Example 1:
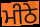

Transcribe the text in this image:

ਮੀਠੇ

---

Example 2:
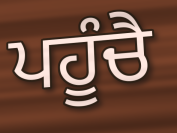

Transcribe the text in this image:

ਪਹੂੰਚੈ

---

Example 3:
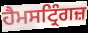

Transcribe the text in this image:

ਹੈਮਸਟ੍ਰਿੰਗਜ਼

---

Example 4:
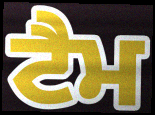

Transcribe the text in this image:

ਟੈਮ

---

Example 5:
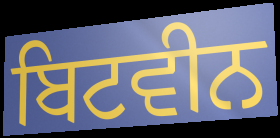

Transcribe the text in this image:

ਬਿਟਵੀਨ